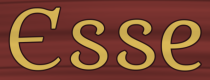
Esse